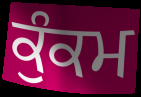
ਕੁੰਕਮ